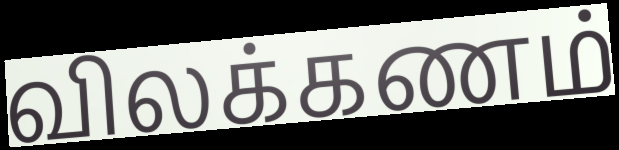
விலக்கணம்